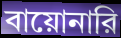
বায়োনারি